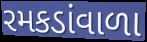
રમકડાંવાળા